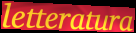
letteratura